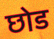
छोड